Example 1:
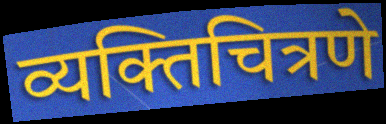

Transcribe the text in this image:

व्यक्तिचित्रणे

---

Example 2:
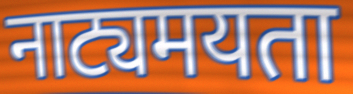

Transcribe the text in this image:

नाट्यमयता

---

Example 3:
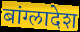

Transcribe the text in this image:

बांग्लादेश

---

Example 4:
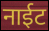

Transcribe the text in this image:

नाईट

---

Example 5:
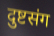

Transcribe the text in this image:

दुष्टसंग